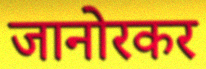
जानोरकर